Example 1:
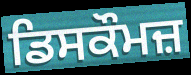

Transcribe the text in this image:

ਡਿਸਕੌਮਜ਼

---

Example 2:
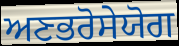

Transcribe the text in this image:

ਅਣਭਰੋਸੇਯੋਗ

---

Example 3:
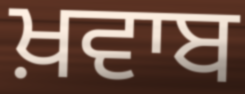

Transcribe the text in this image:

ਖ਼ਵਾਬ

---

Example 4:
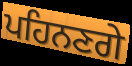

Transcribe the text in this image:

ਪਹਿਨਣਗੇ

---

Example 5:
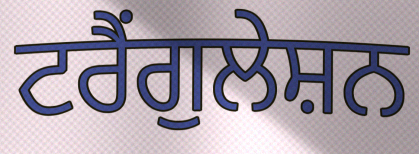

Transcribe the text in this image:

ਟਰੈਂਗੁਲੇਸ਼ਨ